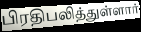
பிரதிபலித்துள்ளார்